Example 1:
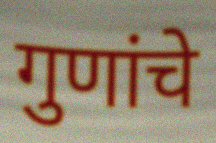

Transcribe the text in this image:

गुणांचे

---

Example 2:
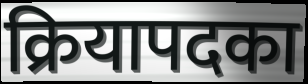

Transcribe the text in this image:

क्रियापदका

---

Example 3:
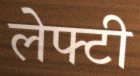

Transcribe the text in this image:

लेफ्टी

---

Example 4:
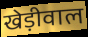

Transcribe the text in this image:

खेड़ीवाल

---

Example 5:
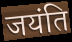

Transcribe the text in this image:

जयंति